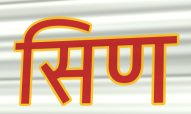
सिण